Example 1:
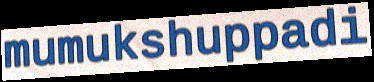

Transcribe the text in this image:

mumukshuppadi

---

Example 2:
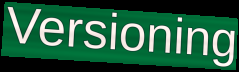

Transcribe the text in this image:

Versioning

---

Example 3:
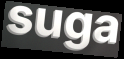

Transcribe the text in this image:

suga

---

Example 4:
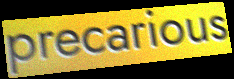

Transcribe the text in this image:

precarious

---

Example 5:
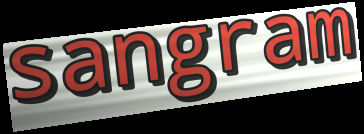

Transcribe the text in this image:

sangram